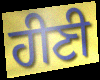
ਹੀਣੀ